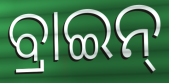
ବ୍ରାଇନ୍